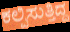
ಕಲ್ಪಿಸುತ್ತಿದ್ದ